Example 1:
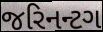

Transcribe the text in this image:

જરિનન્ટગ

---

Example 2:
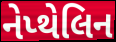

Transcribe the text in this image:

નેપ્થેલિન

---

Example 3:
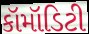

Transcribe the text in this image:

કૉમૉડિટી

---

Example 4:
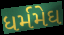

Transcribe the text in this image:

ધર્મમેઘ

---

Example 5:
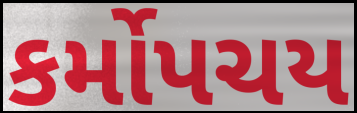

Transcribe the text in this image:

કર્મોપચય